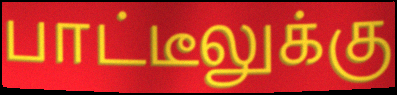
பாட்டீலுக்கு